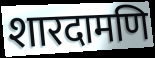
शारदामणि